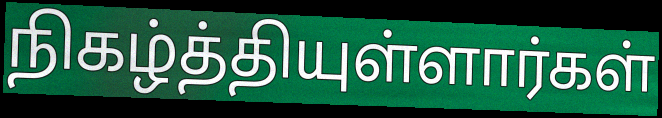
நிகழ்த்தியுள்ளார்கள்